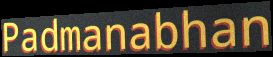
Padmanabhan